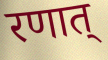
रणात्